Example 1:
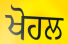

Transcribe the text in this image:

ਖੋਹਲ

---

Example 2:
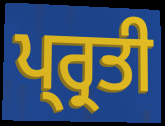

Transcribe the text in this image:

ਪ੍ਰ੍ਰਤੀ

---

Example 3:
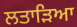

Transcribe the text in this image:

ਲਤਾੜਿਆ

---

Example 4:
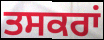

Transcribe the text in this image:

ਤਸਕਰਾਂ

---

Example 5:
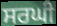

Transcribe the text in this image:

ਸਰਘੀ